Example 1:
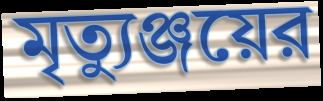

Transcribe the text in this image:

মৃত্যুঞ্জয়ের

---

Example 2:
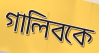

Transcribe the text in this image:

গালিবকে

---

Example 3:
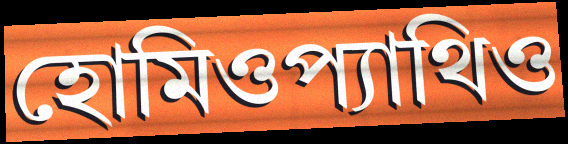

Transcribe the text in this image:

হোমিওপ্যাথিও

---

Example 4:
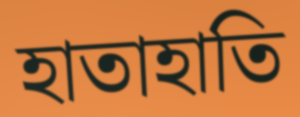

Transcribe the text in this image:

হাতাহাতি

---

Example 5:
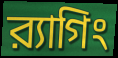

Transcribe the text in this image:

র‍্যাগিং